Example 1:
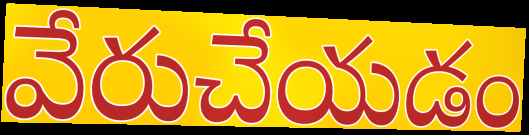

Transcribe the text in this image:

వేరుచేయడం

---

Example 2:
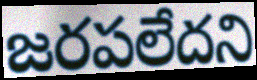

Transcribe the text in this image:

జరపలేదని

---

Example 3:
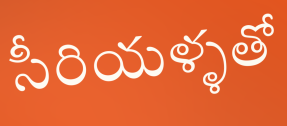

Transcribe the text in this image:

సీరియళ్ళతో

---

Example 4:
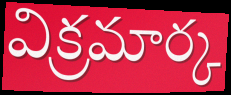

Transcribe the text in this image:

విక్రమార్క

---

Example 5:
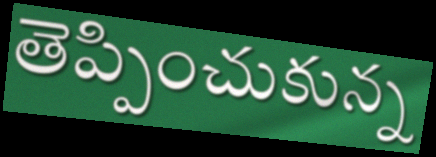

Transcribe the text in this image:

తెప్పించుకున్న